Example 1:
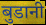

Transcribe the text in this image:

बुडानी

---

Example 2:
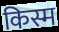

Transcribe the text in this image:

किस्म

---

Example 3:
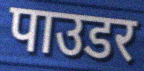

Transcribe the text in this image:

पाउडर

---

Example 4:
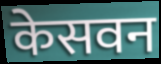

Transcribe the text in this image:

केसवन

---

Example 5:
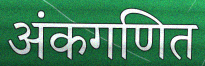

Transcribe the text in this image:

अंकगणित